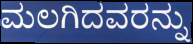
ಮಲಗಿದವರನ್ನು